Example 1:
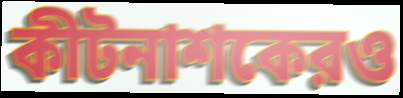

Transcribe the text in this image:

কীটনাশকেরও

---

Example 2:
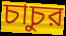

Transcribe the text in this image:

চাচুর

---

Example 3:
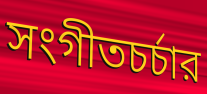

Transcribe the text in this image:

সংগীতচর্চার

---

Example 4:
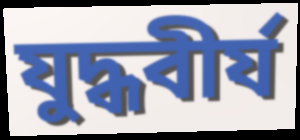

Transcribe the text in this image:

যুদ্ধবীর্য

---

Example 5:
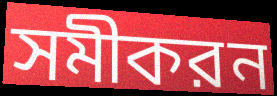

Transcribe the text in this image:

সমীকরন